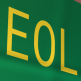
EOL